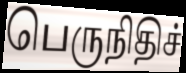
பெருநிதிச்